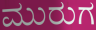
ಮುರುಗ